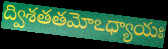
ద్విశతతమోఽధ్యాయః